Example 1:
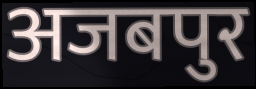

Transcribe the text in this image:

अजबपुर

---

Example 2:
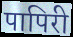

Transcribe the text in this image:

पापिरी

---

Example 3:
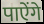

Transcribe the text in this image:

पाऐंगे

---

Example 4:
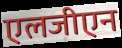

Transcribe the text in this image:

एलजीएन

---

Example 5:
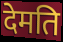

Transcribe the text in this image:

देमति